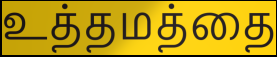
உத்தமத்தை